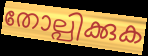
തോല്പിക്കുക